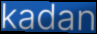
kadan